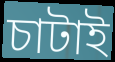
চাটাই